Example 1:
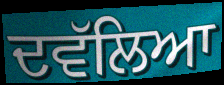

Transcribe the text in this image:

ਦਵੱਲਿਆ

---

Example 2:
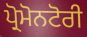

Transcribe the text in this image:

ਪ੍ਰੋਮੋਨਟੋਰੀ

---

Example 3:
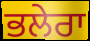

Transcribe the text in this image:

ਭਲੇਰਾ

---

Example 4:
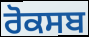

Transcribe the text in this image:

ਰੋਕਸਬ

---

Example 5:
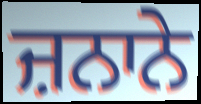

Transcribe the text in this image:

ਜ਼ਨਾਨੇ